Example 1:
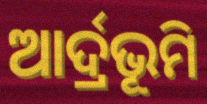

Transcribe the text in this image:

ଆର୍ଦ୍ରଭୂମି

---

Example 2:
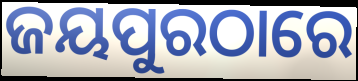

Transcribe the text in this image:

ଜୟପୁରଠାରେ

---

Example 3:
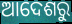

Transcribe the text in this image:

ଆଦେଶରୁ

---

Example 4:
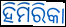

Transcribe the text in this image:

ହିମିରିକା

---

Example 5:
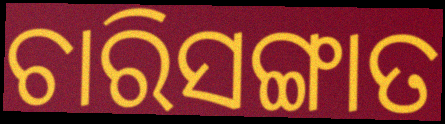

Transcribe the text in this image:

ଚାରିସଙ୍ଗାତ